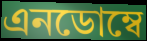
এনডোম্বে